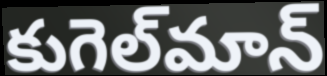
కుగెల్‌మాన్